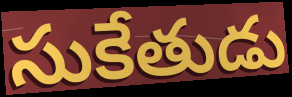
సుకేతుడు